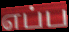
எப்ப